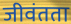
जीवंतता